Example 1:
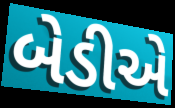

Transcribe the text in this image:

બેડીએ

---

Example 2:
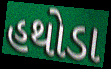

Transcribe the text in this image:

હથોડા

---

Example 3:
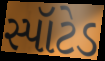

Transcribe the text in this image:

સ્પૉટેડ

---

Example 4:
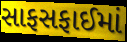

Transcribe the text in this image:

સાફસફાઈમાં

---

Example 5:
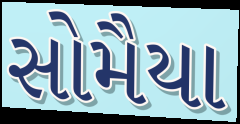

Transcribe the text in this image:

સોમૈયા